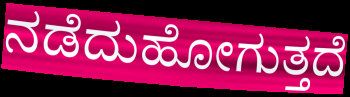
ನಡೆದುಹೋಗುತ್ತದೆ